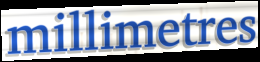
millimetres